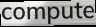
compute